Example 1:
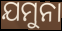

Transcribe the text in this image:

ଯମୁନା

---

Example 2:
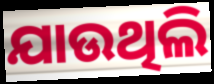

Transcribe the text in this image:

ଯାଉଥିଲି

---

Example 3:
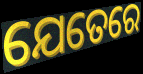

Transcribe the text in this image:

ଯେତେରେ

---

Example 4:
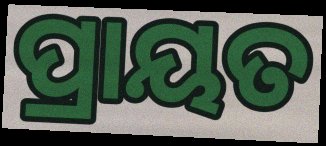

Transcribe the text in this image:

ପ୍ରାୟତ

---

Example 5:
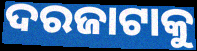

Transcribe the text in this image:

ଦରଜାଟାକୁ